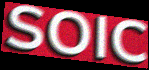
SOIC